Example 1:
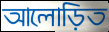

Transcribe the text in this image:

আলোড়িত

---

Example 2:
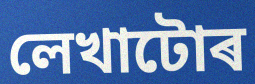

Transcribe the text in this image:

লেখাটোৰ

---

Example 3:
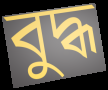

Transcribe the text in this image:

বুদ্ধ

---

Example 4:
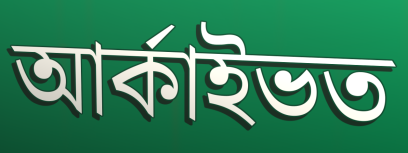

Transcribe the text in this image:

আৰ্কাইভত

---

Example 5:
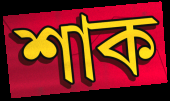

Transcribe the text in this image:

শাক